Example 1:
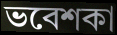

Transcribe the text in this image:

ভবেশকা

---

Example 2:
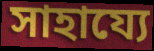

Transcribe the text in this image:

সাহায্যে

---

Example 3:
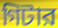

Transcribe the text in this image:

গিটার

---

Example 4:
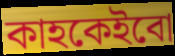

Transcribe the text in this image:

কাহকেইবো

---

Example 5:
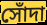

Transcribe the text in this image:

সোঁদা